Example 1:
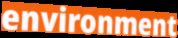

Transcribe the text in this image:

environment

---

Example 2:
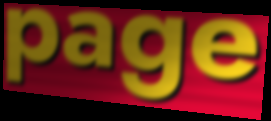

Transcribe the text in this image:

page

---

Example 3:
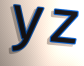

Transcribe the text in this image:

yz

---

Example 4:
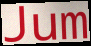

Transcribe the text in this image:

Jum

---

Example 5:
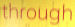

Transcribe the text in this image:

through